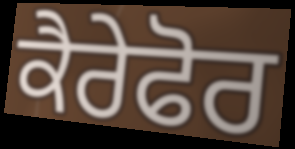
ਕੈਰੇਫੋਰ